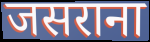
जसराना